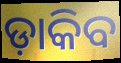
ଡ଼ାକିବ